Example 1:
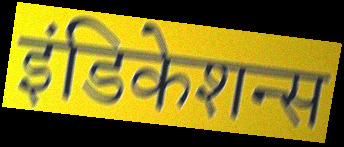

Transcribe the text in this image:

इंडिकेशन्स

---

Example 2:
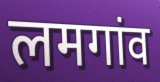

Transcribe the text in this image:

लमगांव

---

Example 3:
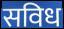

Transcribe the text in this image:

सविध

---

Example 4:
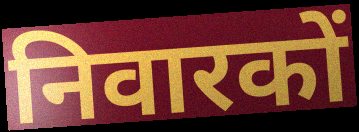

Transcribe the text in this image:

निवारकों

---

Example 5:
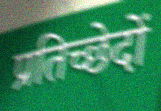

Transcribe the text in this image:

प्रतिच्छेदों